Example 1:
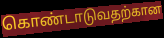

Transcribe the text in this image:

கொண்டாடுவதற்கான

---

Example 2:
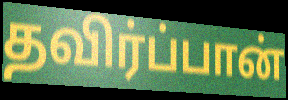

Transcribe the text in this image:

தவிர்ப்பான்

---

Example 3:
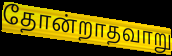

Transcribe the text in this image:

தோன்றாதவாறு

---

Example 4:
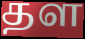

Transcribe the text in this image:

தள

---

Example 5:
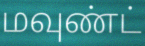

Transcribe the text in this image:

மவுண்ட்